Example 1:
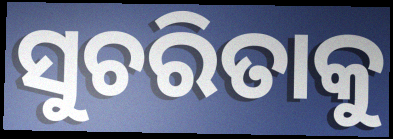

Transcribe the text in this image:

ସୁଚରିତାକୁ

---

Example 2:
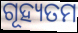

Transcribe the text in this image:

ଗୂହ୍ୟତମ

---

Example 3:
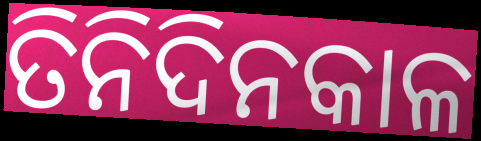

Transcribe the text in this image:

ତିନିଦିନକାଳ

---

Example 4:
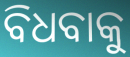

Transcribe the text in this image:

ବିଧବାକୁ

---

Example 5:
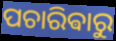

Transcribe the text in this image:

ପଚାରିଵାରୁ